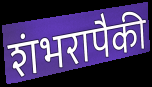
शंभरापैकी